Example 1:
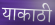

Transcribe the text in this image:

याकाठी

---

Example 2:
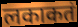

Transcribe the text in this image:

लकाकतं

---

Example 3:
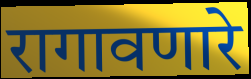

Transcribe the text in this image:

रागावणारे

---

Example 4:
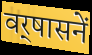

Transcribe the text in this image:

वर्षासनें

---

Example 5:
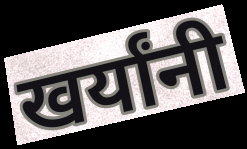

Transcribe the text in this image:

खर्यांनी